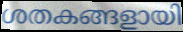
ശതകങ്ങളായി